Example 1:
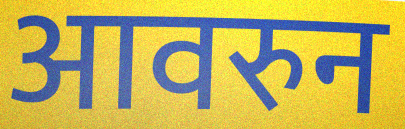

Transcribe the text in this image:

आवरुन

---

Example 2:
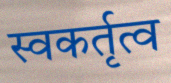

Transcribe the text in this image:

स्वकर्तृत्व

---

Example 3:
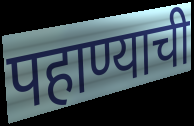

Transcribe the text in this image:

पहाण्याची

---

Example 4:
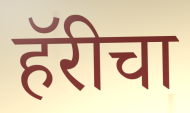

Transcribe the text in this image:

हॅरीचा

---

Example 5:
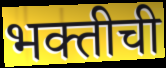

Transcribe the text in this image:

भक्तीची